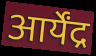
आर्येंद्र